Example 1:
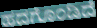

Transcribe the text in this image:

ಹದಗೊಂಡಿದೆ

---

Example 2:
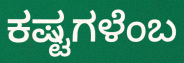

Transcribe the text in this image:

ಕಷ್ಟಗಳೆಂಬ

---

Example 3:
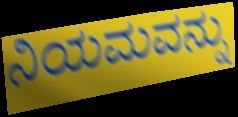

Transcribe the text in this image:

ನಿಯಮವನ್ನು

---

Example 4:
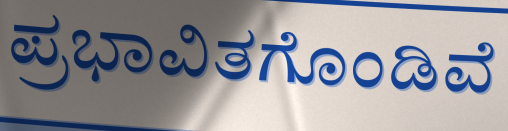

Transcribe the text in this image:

ಪ್ರಭಾವಿತಗೊಂಡಿವೆ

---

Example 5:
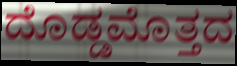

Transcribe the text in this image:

ದೊಡ್ಡಮೊತ್ತದ